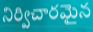
నిర్విచారమైన